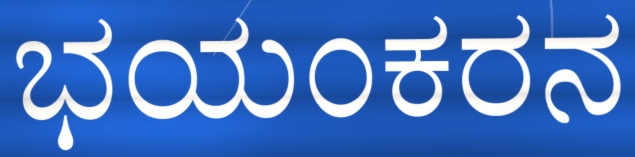
ಭಯಂಕರನ